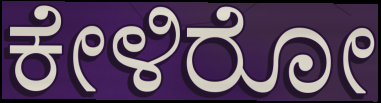
ಕೇಳಿರೋ